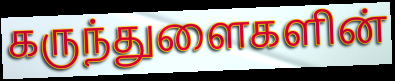
கருந்துளைகளின்